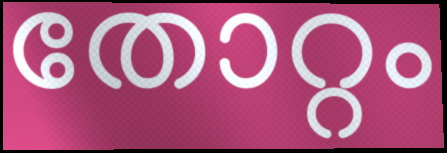
തോറ്റം